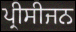
ਪ੍ਰੀਸੀਜਨ